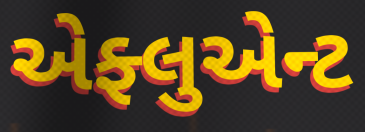
એફ્લુએન્ટ